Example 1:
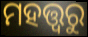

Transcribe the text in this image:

ମହତ୍ତ୍ୱରୁ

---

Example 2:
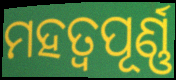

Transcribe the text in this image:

ମହତ୍ଵପୂର୍ଣ୍ଣ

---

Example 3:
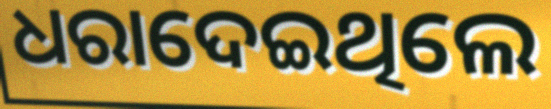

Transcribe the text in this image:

ଧରାଦେଇଥିଲେ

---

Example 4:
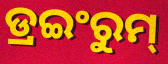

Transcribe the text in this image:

ଡ୍ରଇଂରୁମ୍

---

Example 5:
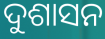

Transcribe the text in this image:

ଦୁଶାସନ